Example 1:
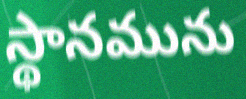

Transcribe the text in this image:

స్థానమును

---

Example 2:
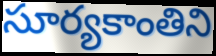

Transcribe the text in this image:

సూర్యకాంతిని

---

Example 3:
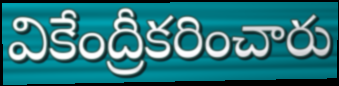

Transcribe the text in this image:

వికేంద్రీకరించారు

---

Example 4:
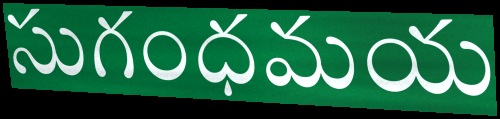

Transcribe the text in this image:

సుగంధమయ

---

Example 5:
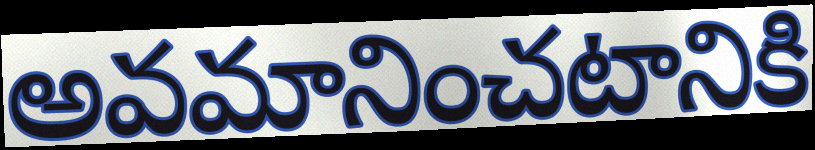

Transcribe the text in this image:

అవమానించటానికి